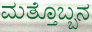
ಮತ್ತೊಬ್ಬನ